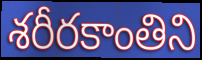
శరీరకాంతిని